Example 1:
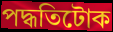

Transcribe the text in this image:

পদ্ধতিটোক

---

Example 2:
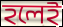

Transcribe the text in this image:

হলেই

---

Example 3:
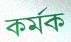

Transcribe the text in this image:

কৰ্মক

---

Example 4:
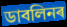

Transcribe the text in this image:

ডাবলিনৰ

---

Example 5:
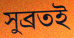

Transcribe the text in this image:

সুব্ৰতই